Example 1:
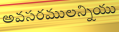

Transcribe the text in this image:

అవసరములన్నియు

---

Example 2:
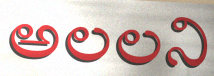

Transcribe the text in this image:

అలలని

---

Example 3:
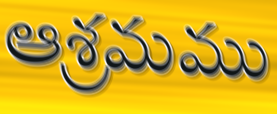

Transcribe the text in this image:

ఆశ్రమము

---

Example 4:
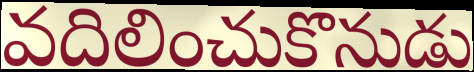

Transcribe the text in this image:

వదిలించుకొనుడు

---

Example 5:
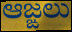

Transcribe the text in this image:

ఆజ్ఙలు